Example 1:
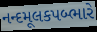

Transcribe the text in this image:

નન્દમૂલકપબ્ભારે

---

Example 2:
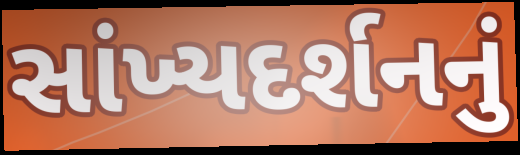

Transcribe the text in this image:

સાંખ્યદર્શનનું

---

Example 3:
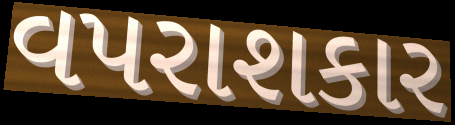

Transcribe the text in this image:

વપરાશકાર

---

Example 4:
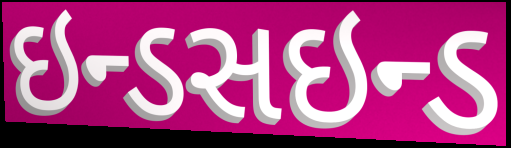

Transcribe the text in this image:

ઇન્ડસઇન્ડ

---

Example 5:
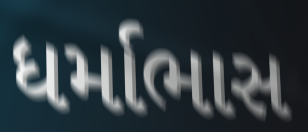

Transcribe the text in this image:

ધર્માભાસ